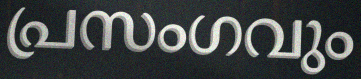
പ്രസംഗവും